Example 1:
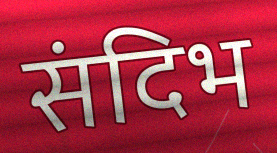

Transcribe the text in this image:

संदिभ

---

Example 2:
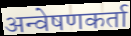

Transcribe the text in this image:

अन्वेषणकर्ता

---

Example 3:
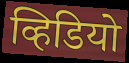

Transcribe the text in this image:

व्हिडियो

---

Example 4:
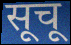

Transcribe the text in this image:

सूचू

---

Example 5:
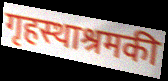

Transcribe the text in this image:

गृहस्थाश्रमकी